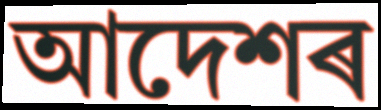
আদেশৰ